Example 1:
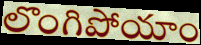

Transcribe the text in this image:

లొంగిపోయాం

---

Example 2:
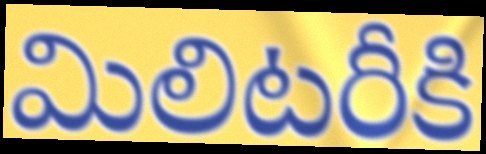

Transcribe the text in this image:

మిలిటరీకి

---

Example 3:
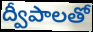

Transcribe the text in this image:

ద్వీపాలతో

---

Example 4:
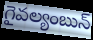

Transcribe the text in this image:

గైవల్యంబున్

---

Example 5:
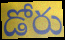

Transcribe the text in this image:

డోరు